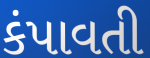
કંપાવતી